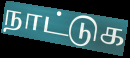
நாட்டுக